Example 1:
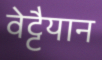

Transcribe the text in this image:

वेट्टैयान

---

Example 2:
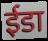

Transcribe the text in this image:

ईडा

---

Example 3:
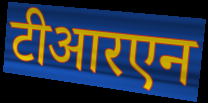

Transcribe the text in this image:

टीआरएन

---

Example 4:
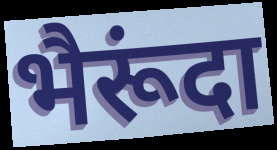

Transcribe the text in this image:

भैरूंदा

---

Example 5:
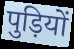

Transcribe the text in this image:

पुड़ियों